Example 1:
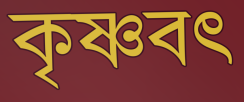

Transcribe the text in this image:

কৃষ্ণবৎ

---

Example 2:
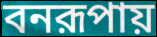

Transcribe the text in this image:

বনরূপায়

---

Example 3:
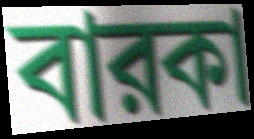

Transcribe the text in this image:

বারকা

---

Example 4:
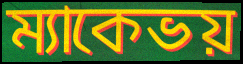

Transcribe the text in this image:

ম্যাকেভয়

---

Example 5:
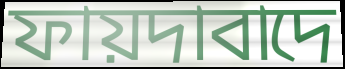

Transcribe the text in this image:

ফায়দাবাদে